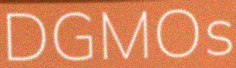
DGMOs